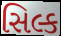
સિલ્ક